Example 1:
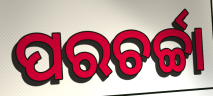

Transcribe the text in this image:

ପରଚର୍ଚ୍ଚା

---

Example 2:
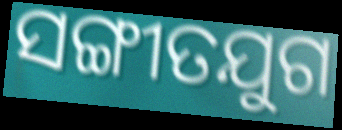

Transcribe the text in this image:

ସଙ୍ଗୀତଯୁଗ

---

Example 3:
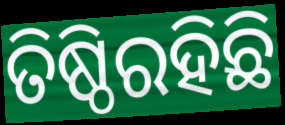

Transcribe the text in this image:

ତିଷ୍ଠିରହିଛି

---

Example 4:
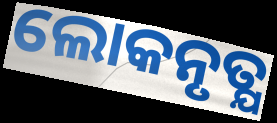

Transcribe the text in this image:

ଲୋକନୃତ୍ଯ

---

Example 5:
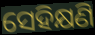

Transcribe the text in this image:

ସେହିକ୍ଷଣି